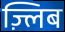
ज़्लिब